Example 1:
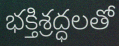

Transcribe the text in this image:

భక్తిశ్రద్ధలతో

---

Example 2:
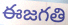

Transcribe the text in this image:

ఈజగతి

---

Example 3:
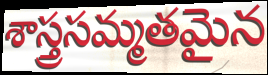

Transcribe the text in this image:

శాస్త్రసమ్మతమైన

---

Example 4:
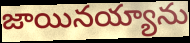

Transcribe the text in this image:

జాయినయ్యాను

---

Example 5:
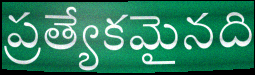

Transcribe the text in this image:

ప్రత్యేకమైనది